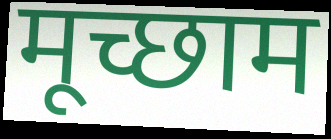
मूच्छाम